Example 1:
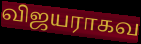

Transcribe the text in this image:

விஜயராகவ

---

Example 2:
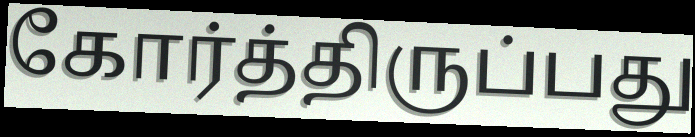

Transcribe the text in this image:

கோர்த்திருப்பது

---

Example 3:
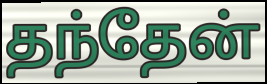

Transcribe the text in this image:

தந்தேன்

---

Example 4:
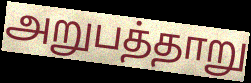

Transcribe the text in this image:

அறுபத்தாறு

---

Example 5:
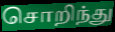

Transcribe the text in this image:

சொறிந்து